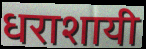
धराशायी